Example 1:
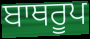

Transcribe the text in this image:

ਬਾਥਰੂਪ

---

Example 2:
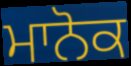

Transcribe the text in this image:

ਮਾਨੋਕ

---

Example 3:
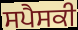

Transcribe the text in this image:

ਸਪੈਸਕੀ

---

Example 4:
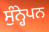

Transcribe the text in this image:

ਸੁੰਨ੍ਹੇਪਨ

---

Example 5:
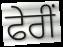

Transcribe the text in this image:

ਫੇਰੀਂ